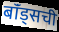
बॉंड्सची